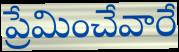
ప్రేమించేవారే